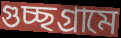
গুচ্ছগ্রামে